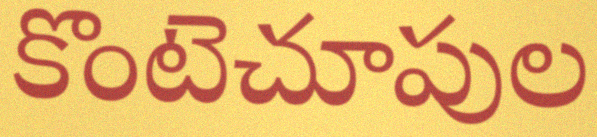
కొంటెచూపుల